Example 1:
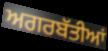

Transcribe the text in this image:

ਅਗਰਬੱਤੀਆਂ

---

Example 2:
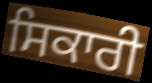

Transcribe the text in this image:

ਸਿਕਾਰੀ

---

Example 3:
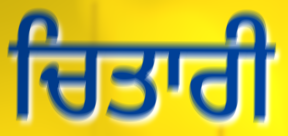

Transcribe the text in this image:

ਚਿਤਾਰੀ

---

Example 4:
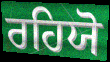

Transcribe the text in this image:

ਰਹਿਯੋ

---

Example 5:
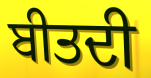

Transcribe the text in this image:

ਬੀਤਦੀ